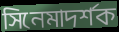
সিনেমাদর্শক